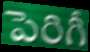
పెరిగీ